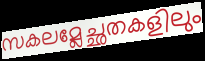
സകലമ്ലേച്ഛതകളിലും